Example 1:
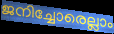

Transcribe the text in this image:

ജനിച്ചോരെല്ലാം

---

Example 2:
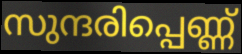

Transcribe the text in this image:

സുന്ദരിപ്പെണ്ണ്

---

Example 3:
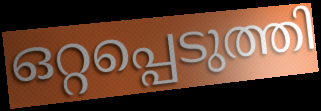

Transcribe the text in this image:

ഒറ്റപ്പെടുത്തി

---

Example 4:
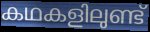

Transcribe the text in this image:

കഥകളിലുണ്ട്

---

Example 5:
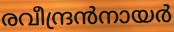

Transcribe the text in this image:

രവീന്ദ്രൻനായർ